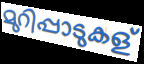
മുറിപ്പാടുകള്